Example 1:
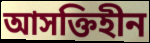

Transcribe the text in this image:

আসক্তিহীন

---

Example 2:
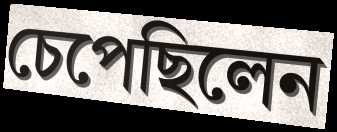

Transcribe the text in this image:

চেপেছিলেন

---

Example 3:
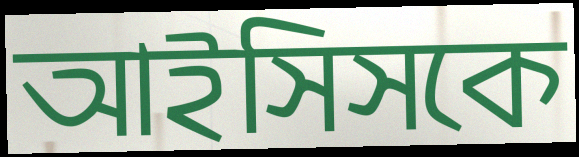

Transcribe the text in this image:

আইসিসকে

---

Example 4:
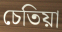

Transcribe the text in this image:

চেতিয়া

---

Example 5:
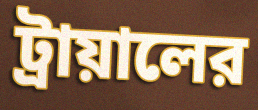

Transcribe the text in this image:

ট্রায়ালের